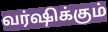
வர்ஷிக்கும்